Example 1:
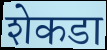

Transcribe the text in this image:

शेकडा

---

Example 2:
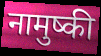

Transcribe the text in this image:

नामुष्की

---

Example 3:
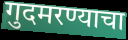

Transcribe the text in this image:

गुदमरण्याचा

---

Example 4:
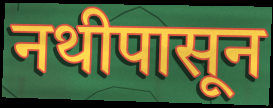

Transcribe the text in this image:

नथीपासून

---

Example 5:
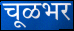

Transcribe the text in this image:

चूळभर